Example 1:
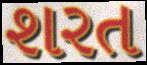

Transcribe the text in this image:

શરત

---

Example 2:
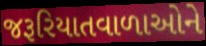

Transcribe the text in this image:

જરૂરિયાતવાળાઓને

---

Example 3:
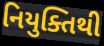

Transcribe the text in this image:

નિયુક્તિથી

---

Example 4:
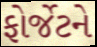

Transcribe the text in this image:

ફોર્જેટને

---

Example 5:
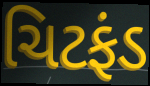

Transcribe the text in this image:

ચિટફંડ